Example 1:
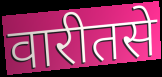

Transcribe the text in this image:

वारीतसे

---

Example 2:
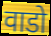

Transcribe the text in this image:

वाडो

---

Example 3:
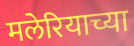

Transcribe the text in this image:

मलेरियाच्या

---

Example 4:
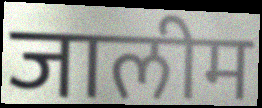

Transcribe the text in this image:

जालीम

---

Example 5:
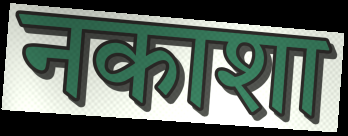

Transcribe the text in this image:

नकाशा